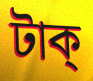
টাক্